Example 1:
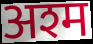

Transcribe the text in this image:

अश्म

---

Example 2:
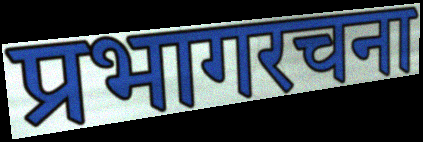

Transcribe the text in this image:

प्रभागरचना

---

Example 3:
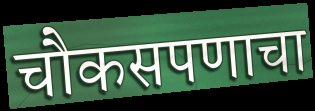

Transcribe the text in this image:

चौकसपणाचा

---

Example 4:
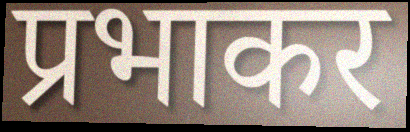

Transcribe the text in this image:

प्रभाकर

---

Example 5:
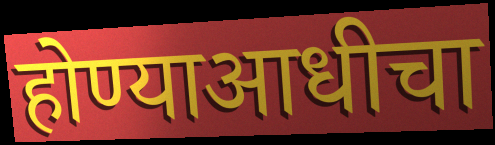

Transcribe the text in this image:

होण्याआधीचा